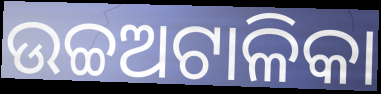
ଉଚ୍ଚଅଟାଳିକା